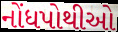
નોંધપોથીઓ